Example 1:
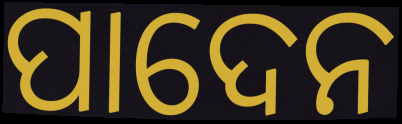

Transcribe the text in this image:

ପାଦେନ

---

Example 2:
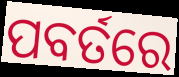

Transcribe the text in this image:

ପବର୍ତରେ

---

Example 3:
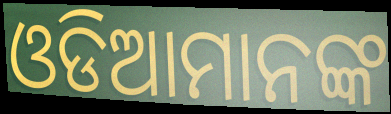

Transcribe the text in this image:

ଓଡିଆମାନଙ୍କ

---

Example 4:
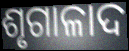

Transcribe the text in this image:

ଶୃଗାଳାଦ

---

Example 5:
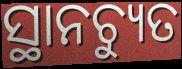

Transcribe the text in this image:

ସ୍ଥାନଚ୍ୟୁତ